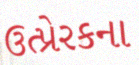
ઉત્પ્રેરકના